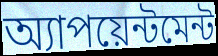
অ্যাপয়েন্টমেন্ট